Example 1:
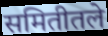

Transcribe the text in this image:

समितीतले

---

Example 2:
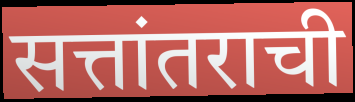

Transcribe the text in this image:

सत्तांतराची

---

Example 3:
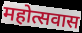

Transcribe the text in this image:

महोत्सवास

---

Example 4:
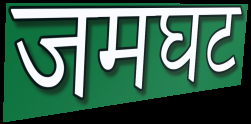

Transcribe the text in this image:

जमघट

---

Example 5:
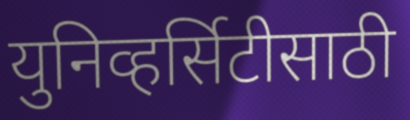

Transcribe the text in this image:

युनिव्हर्सिटीसाठी